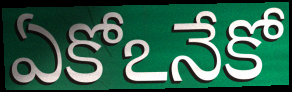
ఏకోఽనేకో